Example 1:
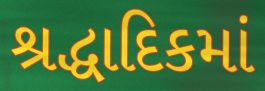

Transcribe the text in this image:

શ્રદ્ધાદિકમાં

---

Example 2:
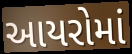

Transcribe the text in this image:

આયરોમાં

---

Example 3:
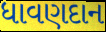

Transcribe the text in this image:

ધાવણદાન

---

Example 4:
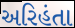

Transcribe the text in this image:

અરિહંતા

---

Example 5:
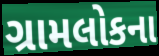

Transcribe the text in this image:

ગ્રામલોકના